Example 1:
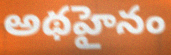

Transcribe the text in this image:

అథహైనం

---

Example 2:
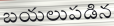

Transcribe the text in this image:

బయలుపడిన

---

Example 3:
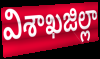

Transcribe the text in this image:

విశాఖజిల్లా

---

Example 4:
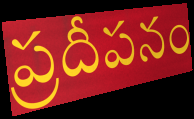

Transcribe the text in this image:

ప్రదీపనం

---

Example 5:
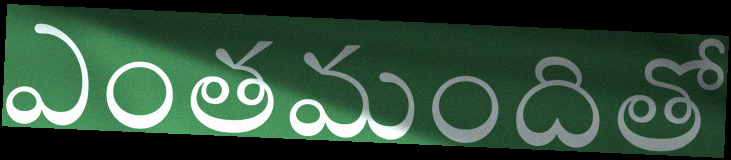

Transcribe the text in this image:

ఎంతమందితో